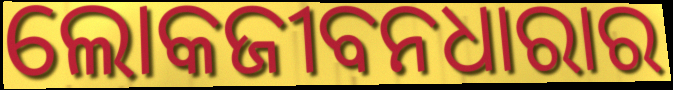
ଲୋକଜୀବନଧାରାର